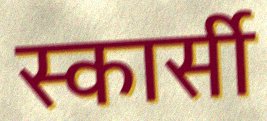
स्कार्सी